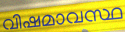
വിഷമാവസ്ഥ